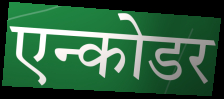
एन्कोडर